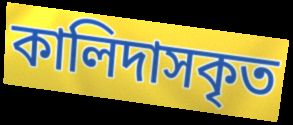
কালিদাসকৃত